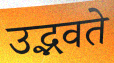
उद्भवते